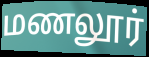
மணலூர்